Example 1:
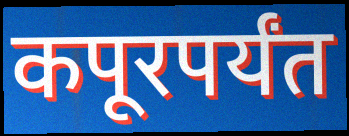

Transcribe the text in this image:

कपूरपर्यंत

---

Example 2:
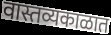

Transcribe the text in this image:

वास्तव्यकाळात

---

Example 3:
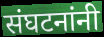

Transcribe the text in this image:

संघटनांनी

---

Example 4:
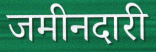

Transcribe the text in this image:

जमीनदारी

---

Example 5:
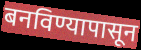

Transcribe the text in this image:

बनविण्यापासून